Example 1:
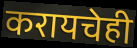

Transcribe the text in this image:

करायचेही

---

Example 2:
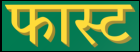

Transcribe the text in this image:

फास्ट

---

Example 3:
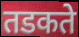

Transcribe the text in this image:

तडकते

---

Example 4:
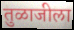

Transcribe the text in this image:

तुळाजीला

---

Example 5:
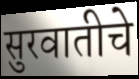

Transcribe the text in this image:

सुरवातीचे